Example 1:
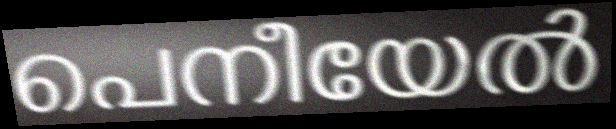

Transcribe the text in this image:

പെനീയേൽ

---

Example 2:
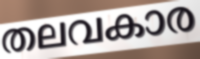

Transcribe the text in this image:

തലവകാര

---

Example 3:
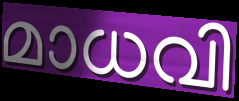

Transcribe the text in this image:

മാധവി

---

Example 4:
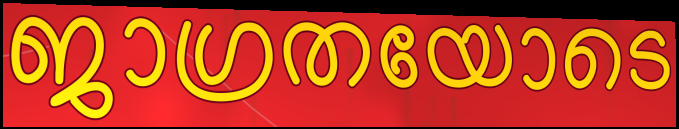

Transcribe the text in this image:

ജാഗ്രതയോടെ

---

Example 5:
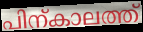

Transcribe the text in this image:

പിന്കാലത്ത്